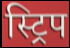
स्ट्रिप